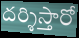
దర్శిస్తారో